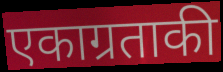
एकाग्रताकी